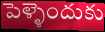
పెళ్ళెందుకు